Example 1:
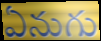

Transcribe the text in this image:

ఏనుగు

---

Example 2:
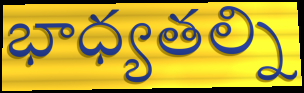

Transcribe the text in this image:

భాధ్యతల్ని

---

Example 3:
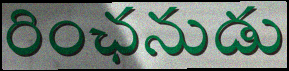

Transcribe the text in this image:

రింఛనుడు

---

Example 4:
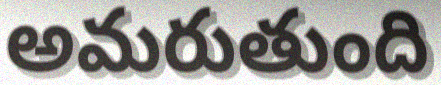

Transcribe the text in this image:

అమరుతుంది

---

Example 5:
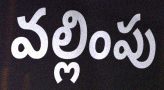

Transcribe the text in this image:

వల్లింపు